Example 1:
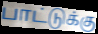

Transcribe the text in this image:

பாட்டுக்கு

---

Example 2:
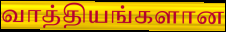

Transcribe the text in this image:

வாத்தியங்களான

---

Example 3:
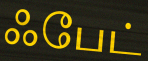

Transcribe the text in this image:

ஃபேட்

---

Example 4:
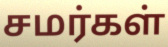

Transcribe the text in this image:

சமர்கள்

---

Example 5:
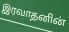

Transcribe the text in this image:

இரவாதனின்